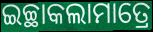
ଇଚ୍ଛାକଲାମାତ୍ରେ